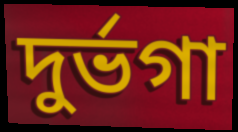
দুর্ভগা